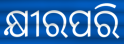
କ୍ଷୀରପରି